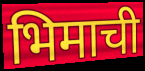
भिमाची